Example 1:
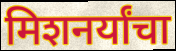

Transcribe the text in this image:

मिशनर्यांचा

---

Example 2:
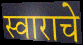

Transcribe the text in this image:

स्वाराचे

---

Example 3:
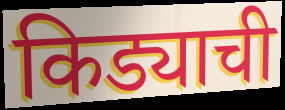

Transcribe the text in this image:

किड्याची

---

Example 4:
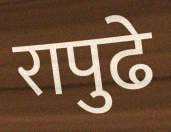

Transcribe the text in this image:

रापुढे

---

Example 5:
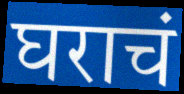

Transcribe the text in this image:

घराचं